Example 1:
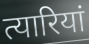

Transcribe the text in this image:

त्यारियां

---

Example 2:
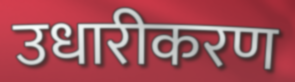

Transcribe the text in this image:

उधारीकरण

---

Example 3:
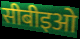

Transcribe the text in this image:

सीबीइओ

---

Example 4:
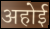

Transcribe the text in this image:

अहोई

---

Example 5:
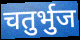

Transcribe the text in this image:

चतुर्भुज